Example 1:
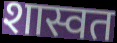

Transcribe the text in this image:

शास्वत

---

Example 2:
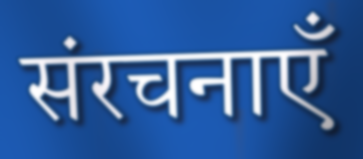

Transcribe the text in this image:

संरचनाएँ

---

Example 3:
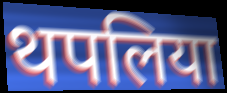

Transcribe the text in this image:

थपलिया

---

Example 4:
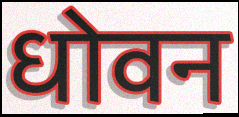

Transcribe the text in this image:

धोवन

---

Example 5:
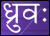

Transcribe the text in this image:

ध्रुवः